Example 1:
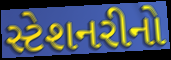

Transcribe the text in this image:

સ્ટેશનરીનો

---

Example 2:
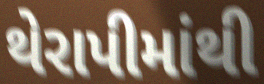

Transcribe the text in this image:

થેરાપીમાંથી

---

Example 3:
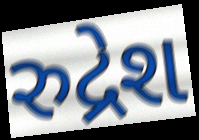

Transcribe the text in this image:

રુદ્રેશ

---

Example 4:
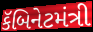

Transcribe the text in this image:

કૅબિનેટમંત્રી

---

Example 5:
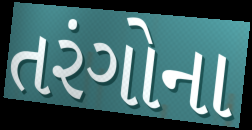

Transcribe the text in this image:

તરંગોના